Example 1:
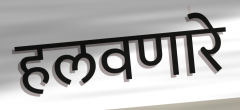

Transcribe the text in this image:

हलवणारे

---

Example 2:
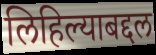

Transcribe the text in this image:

लिहिल्याबद्दल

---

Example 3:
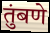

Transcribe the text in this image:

तुंबणे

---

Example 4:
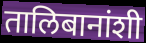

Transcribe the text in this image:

तालिबानांशी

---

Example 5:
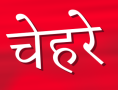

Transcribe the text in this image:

चेहरे